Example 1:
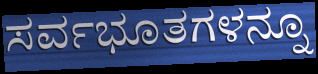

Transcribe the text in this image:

ಸರ್ವಭೂತಗಳನ್ನೂ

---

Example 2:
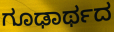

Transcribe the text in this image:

ಗೂಢಾರ್ಥದ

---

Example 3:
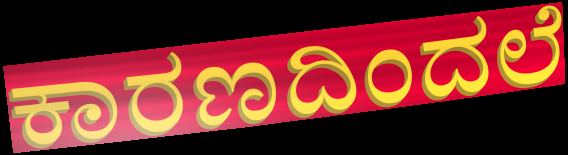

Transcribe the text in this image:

ಕಾರಣದಿಂದಲೆ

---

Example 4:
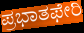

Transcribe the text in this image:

ಪ್ರಭಾತಫೇರಿ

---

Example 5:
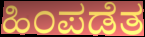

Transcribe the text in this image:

ಹಿಂಪಡೆತ